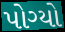
પોગ્યો